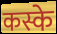
कस्के